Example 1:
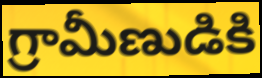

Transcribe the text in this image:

గ్రామీణుడికి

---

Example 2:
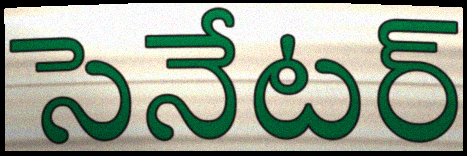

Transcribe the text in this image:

సెనేటర్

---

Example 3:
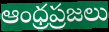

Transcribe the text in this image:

ఆంధ్రప్రజలు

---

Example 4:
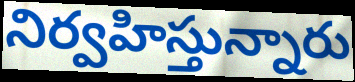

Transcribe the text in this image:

నిర్వహిస్తున్నారు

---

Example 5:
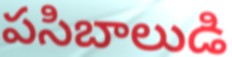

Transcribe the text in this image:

పసిబాలుడి